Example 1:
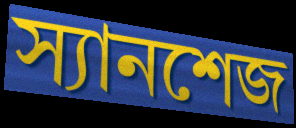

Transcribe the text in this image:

স্যানশেজ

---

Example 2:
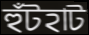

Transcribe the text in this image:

হুঁটহাট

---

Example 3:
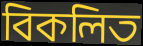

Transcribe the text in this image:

বিকলিত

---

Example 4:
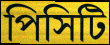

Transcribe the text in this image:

পিসিটি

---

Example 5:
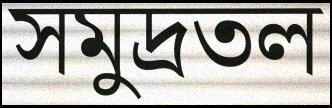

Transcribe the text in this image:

সমুদ্রতল